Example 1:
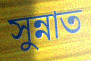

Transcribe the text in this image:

সুন্নাত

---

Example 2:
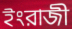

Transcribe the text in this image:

ইংরাজী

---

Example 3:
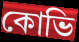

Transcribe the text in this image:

কোভি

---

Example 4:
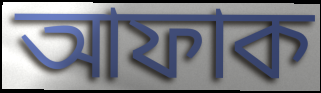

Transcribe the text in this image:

আফাক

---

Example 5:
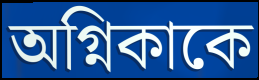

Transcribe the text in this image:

অগ্নিকাকে